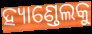
ହ୍ୟାଣ୍ଡେଲକୁ